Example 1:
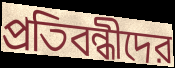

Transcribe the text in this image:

প্রতিবন্ধীদের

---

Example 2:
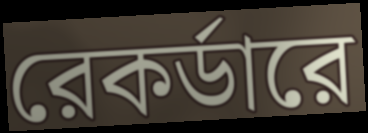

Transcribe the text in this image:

রেকর্ডারে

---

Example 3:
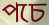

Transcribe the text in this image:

পচে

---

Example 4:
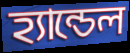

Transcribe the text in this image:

হ্যান্ডেল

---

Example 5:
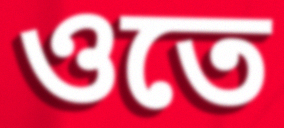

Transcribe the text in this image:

ওতে